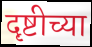
दृष्टीच्या